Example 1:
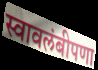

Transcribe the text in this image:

स्वावलंबीपणा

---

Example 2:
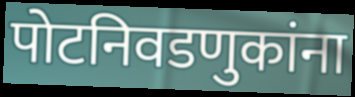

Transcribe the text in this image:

पोटनिवडणुकांना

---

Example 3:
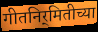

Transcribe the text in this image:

गीतनिर्मितीच्या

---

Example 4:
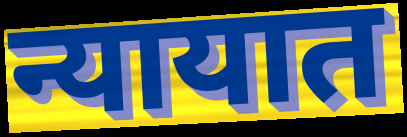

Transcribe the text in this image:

न्यायात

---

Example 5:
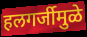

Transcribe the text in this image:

हलगर्जीमुळे